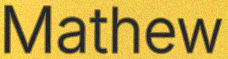
Mathew